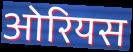
ओरियस